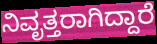
ನಿವೃತ್ತರಾಗಿದ್ದಾರೆ